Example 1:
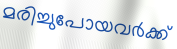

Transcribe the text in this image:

മരിച്ചുപോയവർക്ക്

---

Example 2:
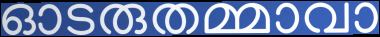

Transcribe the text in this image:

ഓടരുതമ്മാവാ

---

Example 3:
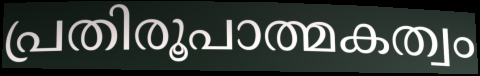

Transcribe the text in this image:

പ്രതിരൂപാത്മകത്വം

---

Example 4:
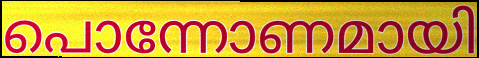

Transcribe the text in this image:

പൊന്നോണമായി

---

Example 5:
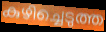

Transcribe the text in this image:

കുഴിച്ചെടുത്ത